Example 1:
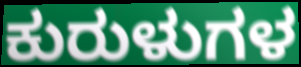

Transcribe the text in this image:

ಕುರುಳುಗಳ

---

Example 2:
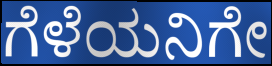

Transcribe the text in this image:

ಗೆಳೆಯನಿಗೇ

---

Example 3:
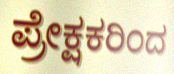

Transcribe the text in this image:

ಪ್ರೇಕ್ಷಕರಿಂದ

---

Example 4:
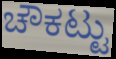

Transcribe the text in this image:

ಚೌಕಟ್ಟು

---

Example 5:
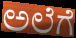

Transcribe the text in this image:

ಅಲೆಗೆ